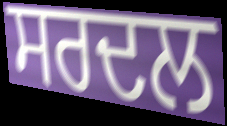
ਸਰਦਲ